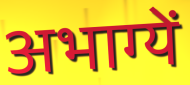
अभाग्यें